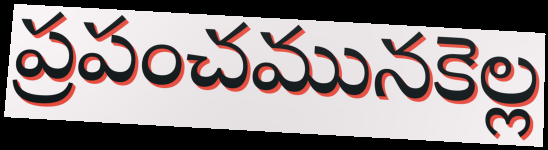
ప్రపంచమునకెల్ల